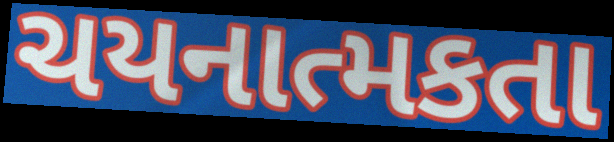
ચયનાત્મકતા